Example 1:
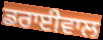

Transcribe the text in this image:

ਡਰਾਈਵਾਲ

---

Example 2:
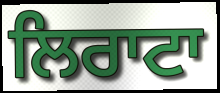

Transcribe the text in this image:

ਲਿਰਾਟਾ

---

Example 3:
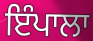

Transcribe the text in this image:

ਇੰਪਾਲਾ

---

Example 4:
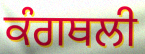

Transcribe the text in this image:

ਕੰਗਥਲੀ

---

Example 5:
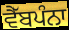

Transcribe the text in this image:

ਵੈੱਬਪੰਨਾ